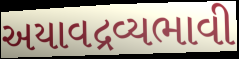
અયાવદ્રવ્યભાવી